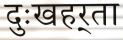
दुःखहर्ता